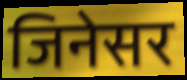
जिनेसर